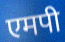
एमपी